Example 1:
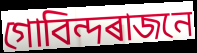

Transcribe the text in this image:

গোবিন্দৰাজনে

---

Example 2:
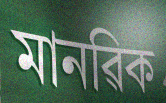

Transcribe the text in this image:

মানৱিক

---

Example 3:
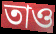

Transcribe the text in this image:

তাও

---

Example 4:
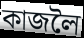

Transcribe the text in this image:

কাজলৈ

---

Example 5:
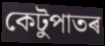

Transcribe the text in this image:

কেটুপাতৰ